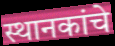
स्थानकांचे